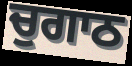
ਚੁਗਾਠ